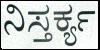
ನಿಸ್ತರ್ಕ್ಯ